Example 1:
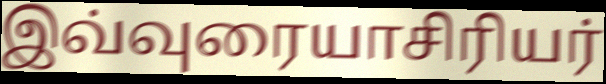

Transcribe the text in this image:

இவ்வுரையாசிரியர்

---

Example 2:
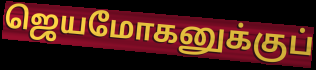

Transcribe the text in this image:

ஜெயமோகனுக்குப்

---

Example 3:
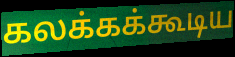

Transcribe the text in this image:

கலக்கக்கூடிய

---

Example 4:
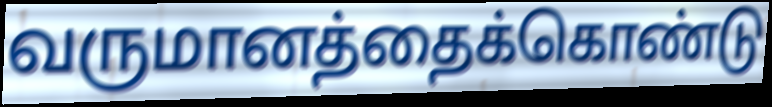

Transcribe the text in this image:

வருமானத்தைக்கொண்டு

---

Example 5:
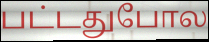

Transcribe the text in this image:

பட்டதுபோல